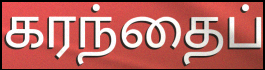
கரந்தைப்